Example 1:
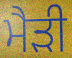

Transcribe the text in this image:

ਮੈੜੀ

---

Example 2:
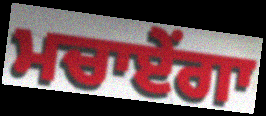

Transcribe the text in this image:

ਮਚਾਏਂਗਾ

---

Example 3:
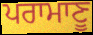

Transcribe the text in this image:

ਪਰਾਮਾਣੂ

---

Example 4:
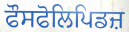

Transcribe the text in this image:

ਫੌਸਫੋਲਿਪਿਡਜ਼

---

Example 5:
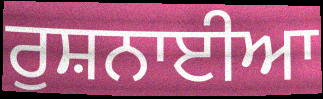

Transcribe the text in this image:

ਰੁਸ਼ਨਾਈਆ